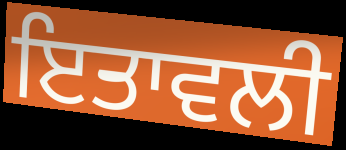
ਇਤਾਵਲੀ